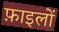
फ़ाइलों